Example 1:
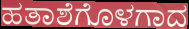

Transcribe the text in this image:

ಹತಾಶೆಗೊಳಗಾದ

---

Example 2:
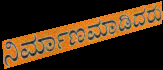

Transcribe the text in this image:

ನಿರ್ಮಾಣಮಾಡಿದರು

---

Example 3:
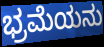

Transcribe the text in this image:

ಭ್ರಮೆಯನು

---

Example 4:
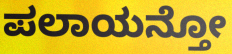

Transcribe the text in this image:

ಪಲಾಯನ್ತೋ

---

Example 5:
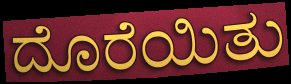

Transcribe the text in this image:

ದೊರೆಯಿತು